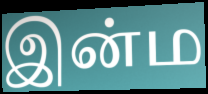
இன்ம